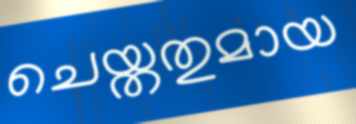
ചെയ്തതുമായ